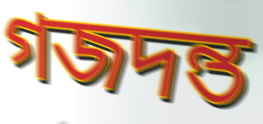
গজদন্ত